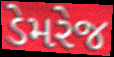
ડેમરેજ